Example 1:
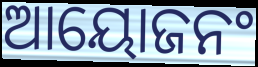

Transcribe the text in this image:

ଆୟୋଜନଂ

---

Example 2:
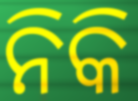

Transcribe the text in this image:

ନିକି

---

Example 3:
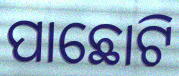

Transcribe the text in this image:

ପାଛୋଟି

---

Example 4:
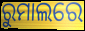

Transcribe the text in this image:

ରୁମାଲରେ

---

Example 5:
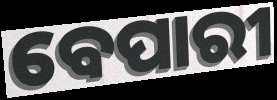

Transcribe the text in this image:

ବେପାରୀ